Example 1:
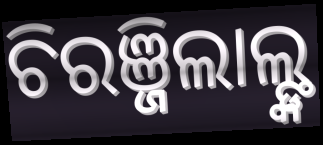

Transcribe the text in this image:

ଚିରଞ୍ଜିଲାଲ୍ଙ୍କ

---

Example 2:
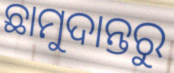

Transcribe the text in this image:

ଛାମୁଦାନ୍ତରୁ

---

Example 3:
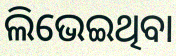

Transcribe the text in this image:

ଲିଭେଇଥିବା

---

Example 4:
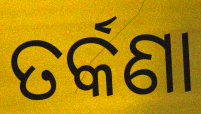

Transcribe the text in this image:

ତର୍କଣା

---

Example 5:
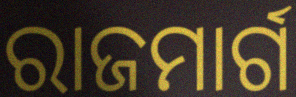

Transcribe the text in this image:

ରାଜମାର୍ଗ